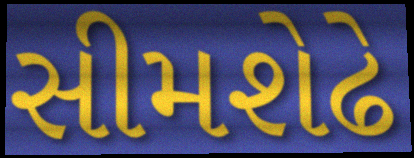
સીમશેઢે